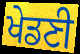
ਖੇਡਣੀ